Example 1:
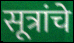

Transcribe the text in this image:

सूत्रांचे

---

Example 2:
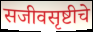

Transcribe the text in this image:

सजीवसृष्टीचे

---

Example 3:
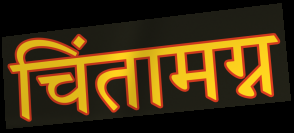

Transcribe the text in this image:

चिंतामग्न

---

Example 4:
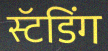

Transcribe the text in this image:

स्टॅडिंग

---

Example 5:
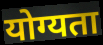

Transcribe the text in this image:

योग्यता